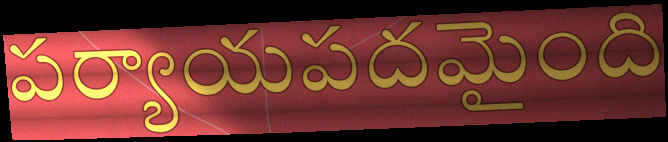
పర్యాయపదమైంది